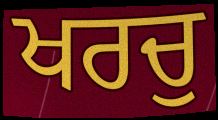
ਖਰਚੁ